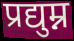
प्रद्युम्न